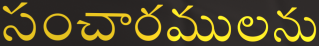
సంచారములను